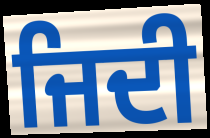
ਜਿਦੀ